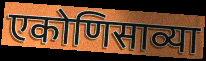
एकोणिसाव्या